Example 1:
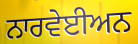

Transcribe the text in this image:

ਨਾਰਵੇਈਅਨ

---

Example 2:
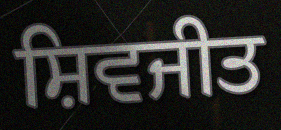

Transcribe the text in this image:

ਸ਼ਿਵਜੀਤ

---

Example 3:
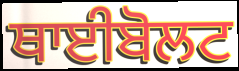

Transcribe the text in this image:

ਥਾਈਬੋਲਟ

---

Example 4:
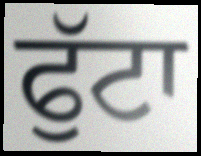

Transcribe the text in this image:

ਫੁੱਟਾ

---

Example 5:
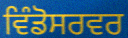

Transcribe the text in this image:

ਵਿੰਡੋਸਰਵਰ